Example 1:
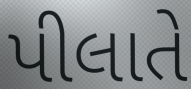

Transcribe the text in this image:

પીલાતે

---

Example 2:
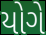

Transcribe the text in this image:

યોગે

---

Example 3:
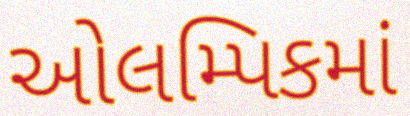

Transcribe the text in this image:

ઓલમ્પિકમાં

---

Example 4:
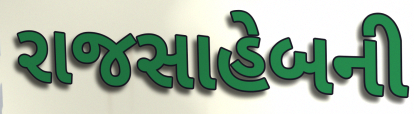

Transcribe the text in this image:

રાજસાહેબની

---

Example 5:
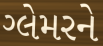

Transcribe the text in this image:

ગ્લેમરને